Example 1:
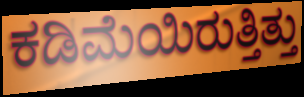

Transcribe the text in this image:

ಕಡಿಮೆಯಿರುತ್ತಿತ್ತು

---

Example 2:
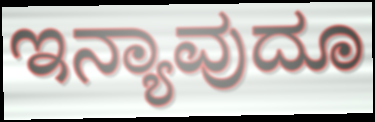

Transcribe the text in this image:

ಇನ್ಯಾವುದೂ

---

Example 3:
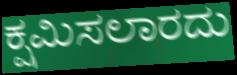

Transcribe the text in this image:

ಕ್ಷಮಿಸಲಾರದು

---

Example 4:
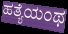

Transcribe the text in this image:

ಹತ್ಯೆಯಂಥ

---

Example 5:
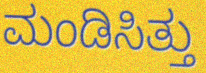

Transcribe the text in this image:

ಮಂಡಿಸಿತ್ತು